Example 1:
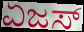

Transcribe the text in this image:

ಏಜಸ್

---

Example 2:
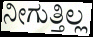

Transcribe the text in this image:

ನೀಗುತ್ತಿಲ್ಲ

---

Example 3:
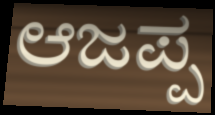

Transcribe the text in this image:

ಆಜಪ್ಪ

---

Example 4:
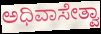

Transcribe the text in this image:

ಅಧಿವಾಸೇತ್ವಾ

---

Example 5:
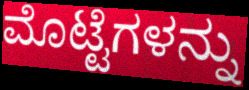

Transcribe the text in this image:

ಮೊಟ್ಟೆಗಳನ್ನು